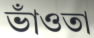
ভাঁওতা